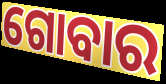
ଗୋବାର